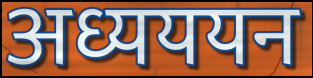
अध्यययन